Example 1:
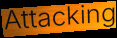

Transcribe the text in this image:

Attacking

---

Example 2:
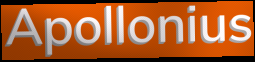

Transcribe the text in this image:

Apollonius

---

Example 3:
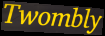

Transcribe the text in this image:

Twombly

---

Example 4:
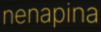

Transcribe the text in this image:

nenapina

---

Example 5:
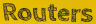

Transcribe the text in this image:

Routers